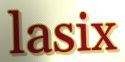
lasix